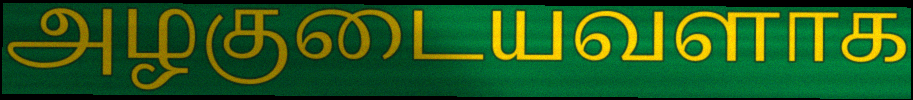
அழகுடையவளாக